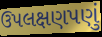
ઉપલક્ષણપણું